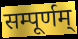
सम्पूर्णम्